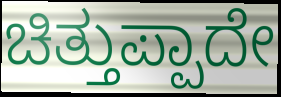
ಚಿತ್ತುಪ್ಪಾದೇ